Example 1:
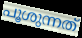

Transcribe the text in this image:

പൂശുന്നത്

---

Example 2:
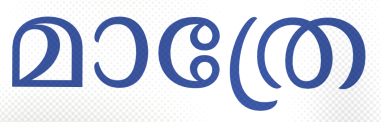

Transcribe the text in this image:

മാത്രേ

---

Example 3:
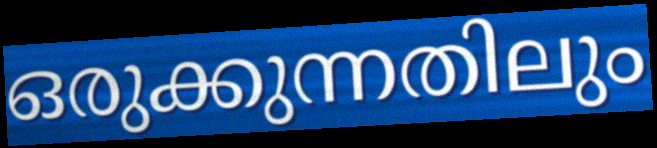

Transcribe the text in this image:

ഒരുക്കുന്നതിലും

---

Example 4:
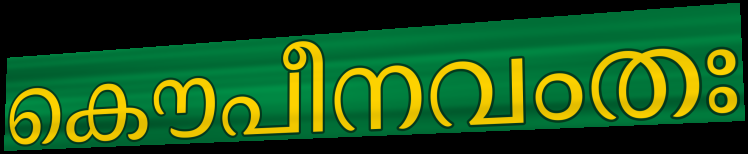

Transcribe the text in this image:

കൌപീനവംതഃ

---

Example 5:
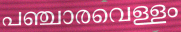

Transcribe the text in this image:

പഞ്ചാരവെള്ളം